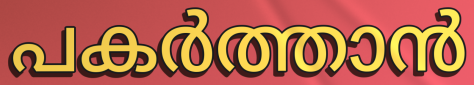
പകർത്താൻ